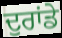
ਦੁਰਾਂਡੇ